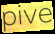
pive